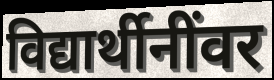
विद्यार्थीनींवर